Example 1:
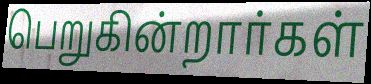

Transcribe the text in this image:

பெறுகின்றார்கள்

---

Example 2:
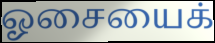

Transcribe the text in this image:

ஓசையைக்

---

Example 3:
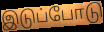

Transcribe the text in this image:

இடுப்போடு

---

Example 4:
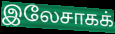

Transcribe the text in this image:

இலேசாகக்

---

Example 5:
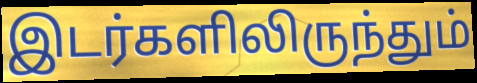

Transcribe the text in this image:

இடர்களிலிருந்தும்